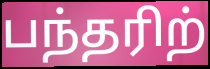
பந்தரிற்